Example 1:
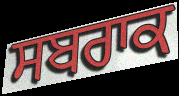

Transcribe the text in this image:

ਸਬਰਾਕ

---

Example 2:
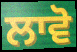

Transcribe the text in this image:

ਲਾਵੋ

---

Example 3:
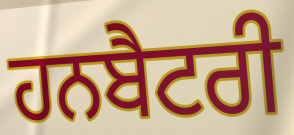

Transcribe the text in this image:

ਹਨਬੈਟਰੀ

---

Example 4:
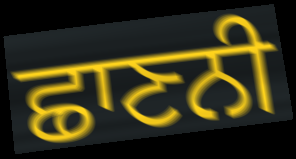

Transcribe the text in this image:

ਛਾਣਨੀ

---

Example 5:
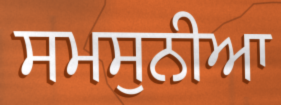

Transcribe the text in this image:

ਸਮਸੁਨੀਆ